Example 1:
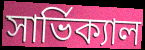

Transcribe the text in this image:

সার্ভিক্যাল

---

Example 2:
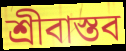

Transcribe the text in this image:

শ্রীবাস্তব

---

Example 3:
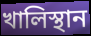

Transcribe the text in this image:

খালিস্থান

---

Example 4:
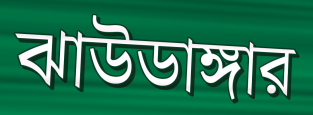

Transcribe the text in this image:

ঝাউডাঙ্গার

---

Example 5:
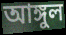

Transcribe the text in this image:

আঙ্গুল